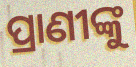
ପ୍ରାଣୀଙ୍କୁ